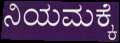
ನಿಯಮಕ್ಕೆ